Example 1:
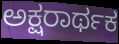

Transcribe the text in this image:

ಅಕ್ಷರಾರ್ಥಕ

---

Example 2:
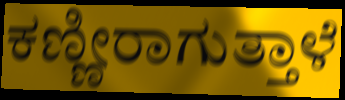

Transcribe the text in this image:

ಕಣ್ಣೀರಾಗುತ್ತಾಳೆ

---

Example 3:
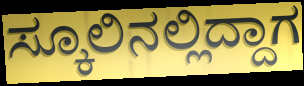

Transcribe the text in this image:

ಸ್ಕೂಲಿನಲ್ಲಿದ್ದಾಗ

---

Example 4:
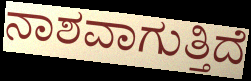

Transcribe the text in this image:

ನಾಶವಾಗುತ್ತಿದೆ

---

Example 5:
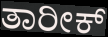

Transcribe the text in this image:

ತಾರೀಕ್